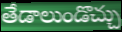
తేడాలుండొచ్చు